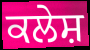
ਕਲੇਸ਼